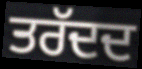
ਤਰੱਦਦ